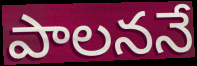
పాలననే